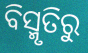
ବିସ୍ମୃତିରୁ